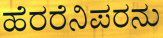
ಹೆರರೆನಿಪರನು